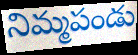
నిమ్మపండు